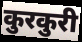
कुरकुरी